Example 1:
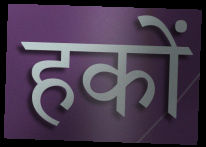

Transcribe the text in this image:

हकों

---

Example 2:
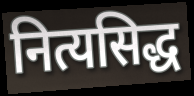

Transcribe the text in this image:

नित्यसिद्ध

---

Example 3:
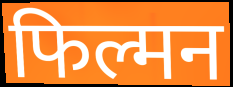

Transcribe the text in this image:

फिल्मन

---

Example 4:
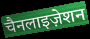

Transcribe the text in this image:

चैनलाइज़ेशन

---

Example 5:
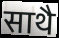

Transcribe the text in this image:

साथै